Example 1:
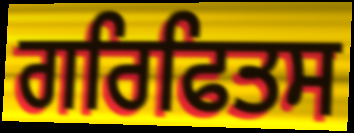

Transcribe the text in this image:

ਗਰਿਫਿਤਸ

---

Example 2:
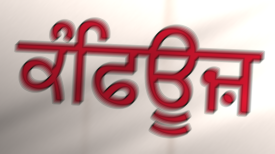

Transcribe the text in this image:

ਕੰਫਿਊਜ਼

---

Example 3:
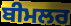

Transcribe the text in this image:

ਬੀਮਲਰ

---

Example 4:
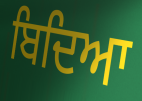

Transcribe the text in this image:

ਬਿਦਿਆ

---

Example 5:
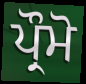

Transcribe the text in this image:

ਪ੍ਰੌਮੋ